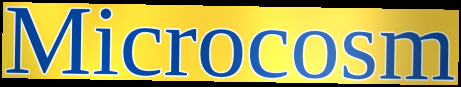
Microcosm